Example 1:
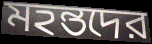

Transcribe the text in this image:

মহন্তদের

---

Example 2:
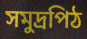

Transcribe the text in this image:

সমুদ্রপিঠ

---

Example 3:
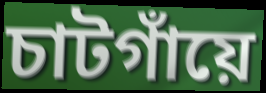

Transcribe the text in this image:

চাটগাঁয়ে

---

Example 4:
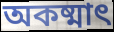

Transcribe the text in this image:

অকষ্মাৎ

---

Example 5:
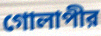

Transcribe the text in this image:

গোলাপীর